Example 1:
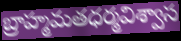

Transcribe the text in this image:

బ్రాహ్మమతధర్మవిశ్వాస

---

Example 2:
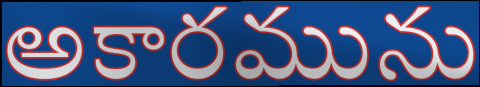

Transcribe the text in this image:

అకారమును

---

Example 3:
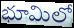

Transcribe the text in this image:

భూమిలో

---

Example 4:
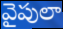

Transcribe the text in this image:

వైపులా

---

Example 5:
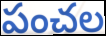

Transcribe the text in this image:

పంచల